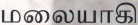
மலையாகி